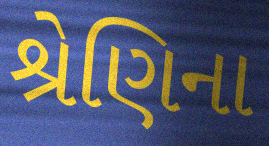
શ્રેણિના